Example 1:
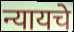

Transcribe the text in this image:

न्यायचे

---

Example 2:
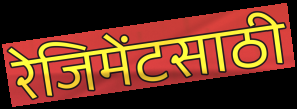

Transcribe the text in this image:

रेजिमेंटसाठी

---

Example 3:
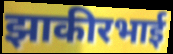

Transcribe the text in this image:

झाकीरभाई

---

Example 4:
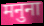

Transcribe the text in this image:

मनुना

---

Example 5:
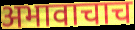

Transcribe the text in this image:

अभावाचाच